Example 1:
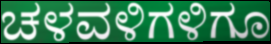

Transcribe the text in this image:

ಚಳವಳಿಗಳಿಗೂ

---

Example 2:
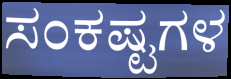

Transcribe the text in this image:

ಸಂಕಷ್ಟಗಳ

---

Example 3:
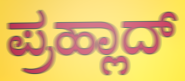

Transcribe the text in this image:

ಪ್ರಹ್ಲಾದ್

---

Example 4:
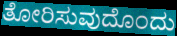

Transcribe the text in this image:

ತೋರಿಸುವುದೊಂದು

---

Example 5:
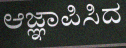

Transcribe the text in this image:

ಆಜ್ಞಾಪಿಸಿದ